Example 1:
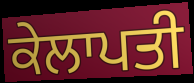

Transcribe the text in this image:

ਕੇਲਾਪਤੀ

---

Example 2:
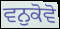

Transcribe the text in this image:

ਵਨੁਕੋਵੋ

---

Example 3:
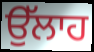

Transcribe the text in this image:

ਉੱਲਾਹ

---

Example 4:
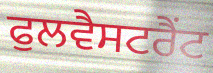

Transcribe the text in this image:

ਫੁਲਵੈਸਟਰੈਂਟ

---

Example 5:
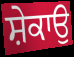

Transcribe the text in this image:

ਸ਼ੇਕਾਉ